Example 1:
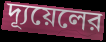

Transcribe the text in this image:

দ্যূয়েলের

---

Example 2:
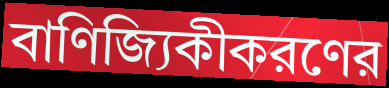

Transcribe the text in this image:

বাণিজ্যিকীকরণের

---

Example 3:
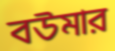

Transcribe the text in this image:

বউমার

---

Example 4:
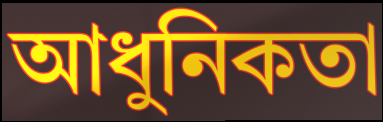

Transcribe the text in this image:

আধুনিকতা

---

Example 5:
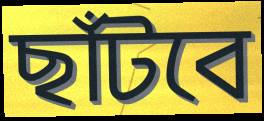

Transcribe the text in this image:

ছাঁটবে